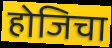
होजिचा